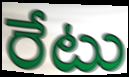
రేటు